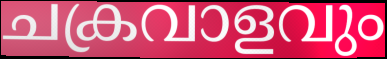
ചക്രവാളവും